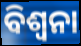
ବିଶ୍ୱନା